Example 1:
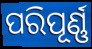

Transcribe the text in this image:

ପରିପୂର୍ଣ୍ଣ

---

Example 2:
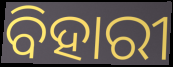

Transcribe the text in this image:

ବିହାରୀ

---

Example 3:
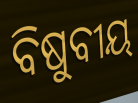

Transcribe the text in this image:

ବିଷୁବୀୟ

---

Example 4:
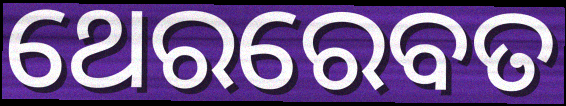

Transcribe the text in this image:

ଥେରରେବତ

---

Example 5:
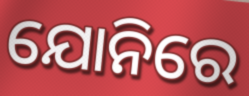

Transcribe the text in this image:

ଯୋନିରେ